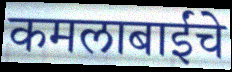
कमलाबाईंचे